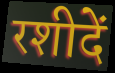
रशीदें